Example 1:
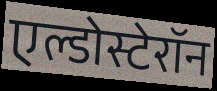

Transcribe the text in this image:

एल्डोस्टेरॉन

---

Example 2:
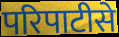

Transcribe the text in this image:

परिपाटीसे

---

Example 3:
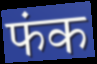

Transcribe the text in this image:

फंक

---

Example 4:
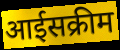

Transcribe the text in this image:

आईसक्रीम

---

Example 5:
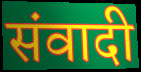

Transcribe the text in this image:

संवादी